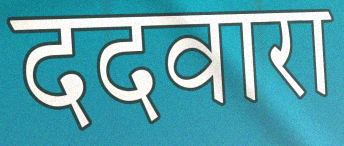
ददवारा